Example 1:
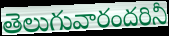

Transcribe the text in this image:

తెలుగువారందరినీ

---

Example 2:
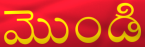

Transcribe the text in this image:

మొండి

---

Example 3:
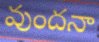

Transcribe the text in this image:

వుందనా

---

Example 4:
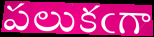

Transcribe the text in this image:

పలుకఁగా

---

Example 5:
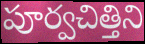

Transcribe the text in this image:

పూర్వచిత్తిని